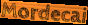
Mordecai